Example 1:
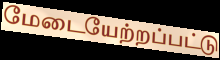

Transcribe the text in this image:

மேடையேற்றப்பட்டு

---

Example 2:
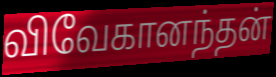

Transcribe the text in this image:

விவேகானந்தன்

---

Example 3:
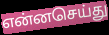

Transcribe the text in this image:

என்னசெய்து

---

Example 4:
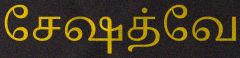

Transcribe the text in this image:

சேஷத்வே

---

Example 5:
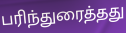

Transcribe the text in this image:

பரிந்துரைத்தது